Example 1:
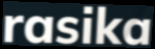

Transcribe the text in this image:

rasika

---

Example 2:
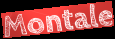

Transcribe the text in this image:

Montale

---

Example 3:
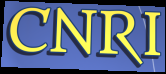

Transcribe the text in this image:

CNRI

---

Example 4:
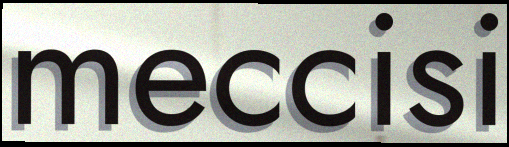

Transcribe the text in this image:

meccisi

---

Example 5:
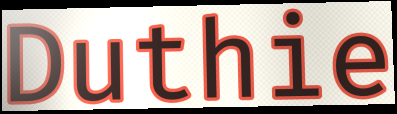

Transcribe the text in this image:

Duthie